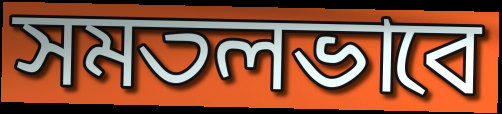
সমতলভাবে